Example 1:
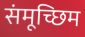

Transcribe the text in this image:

संमूच्छिम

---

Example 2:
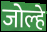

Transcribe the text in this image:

जोल्हे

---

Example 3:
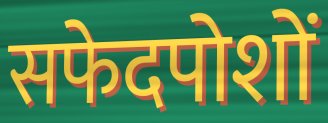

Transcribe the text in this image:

सफेदपोशों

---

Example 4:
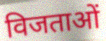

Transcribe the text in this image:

विजताओं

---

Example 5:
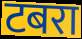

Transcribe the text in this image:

टबरा